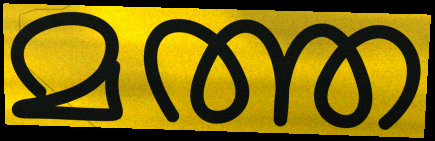
മത്ത